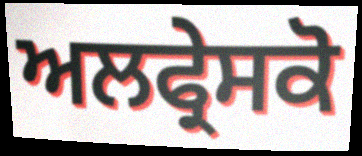
ਅਲਫ੍ਰੇਸਕੋ